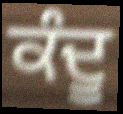
ਕੰਦੂ